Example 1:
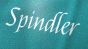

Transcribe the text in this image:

Spindler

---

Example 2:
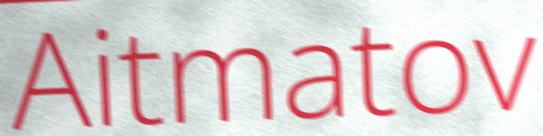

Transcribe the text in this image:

Aitmatov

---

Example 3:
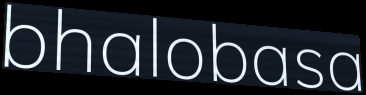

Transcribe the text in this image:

bhalobasa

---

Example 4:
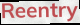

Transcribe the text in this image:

Reentry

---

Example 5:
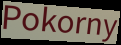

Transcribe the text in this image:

Pokorny